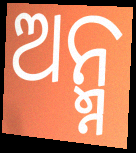
ଅନ୍ମ୍ନ